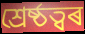
শ্ৰেষ্ঠত্বৰ